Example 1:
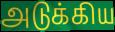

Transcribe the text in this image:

அடுக்கிய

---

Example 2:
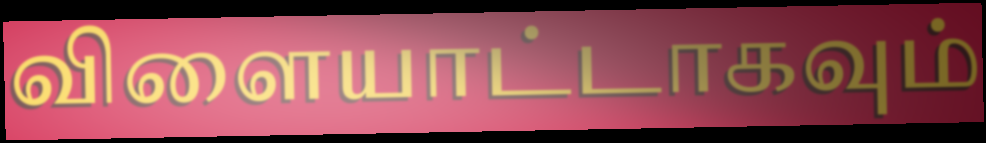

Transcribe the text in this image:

விளையாட்டாகவும்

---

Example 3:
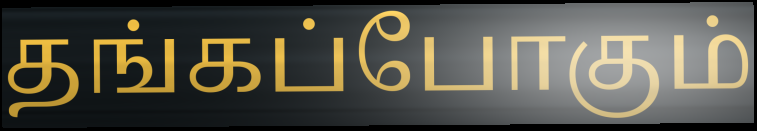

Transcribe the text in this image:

தங்கப்போகும்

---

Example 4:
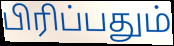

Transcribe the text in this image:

பிரிப்பதும்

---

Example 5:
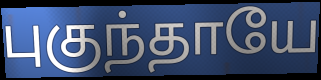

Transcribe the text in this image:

புகுந்தாயே